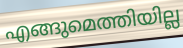
എങ്ങുമെത്തിയില്ല